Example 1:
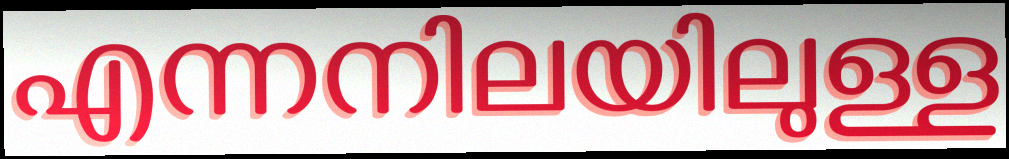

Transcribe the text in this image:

എന്നനിലയിലുള്ള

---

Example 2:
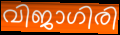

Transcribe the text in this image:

വിജാഗിരി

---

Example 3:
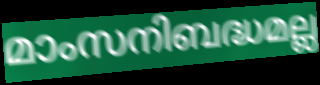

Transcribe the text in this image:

മാംസനിബദ്ധമല്ല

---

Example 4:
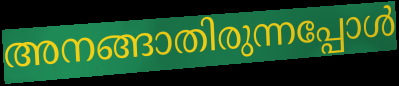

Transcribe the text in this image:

അനങ്ങാതിരുന്നപ്പോൾ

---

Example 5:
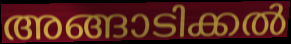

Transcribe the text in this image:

അങ്ങാടിക്കൽ